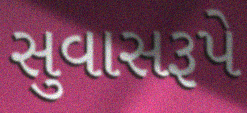
સુવાસરૂપે